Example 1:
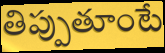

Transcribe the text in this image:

తిప్పుతూంటే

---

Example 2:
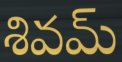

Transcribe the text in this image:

శివమ్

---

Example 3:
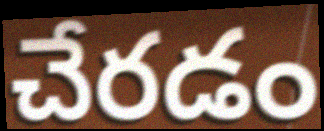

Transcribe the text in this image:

చేరడం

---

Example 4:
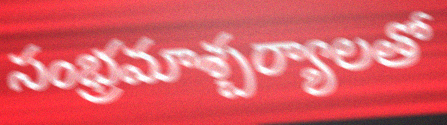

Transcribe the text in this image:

సంభ్రమాశ్చర్యాలతో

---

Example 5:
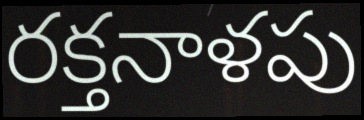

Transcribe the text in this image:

రక్తనాళపు